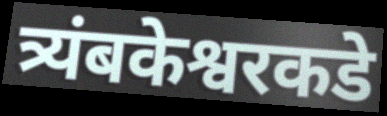
त्र्यंबकेश्वरकडे